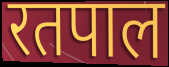
रतपाल